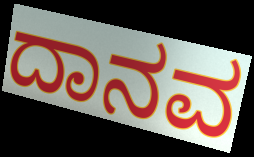
ದಾನವ